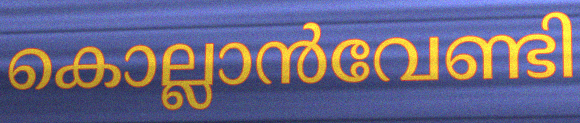
കൊല്ലാൻവേണ്ടി